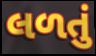
લળતું